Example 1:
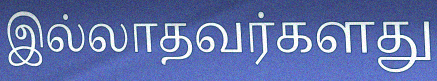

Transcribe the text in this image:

இல்லாதவர்களது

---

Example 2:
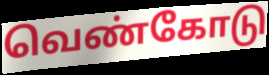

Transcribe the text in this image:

வெண்கோடு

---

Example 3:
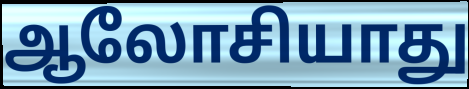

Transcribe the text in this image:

ஆலோசியாது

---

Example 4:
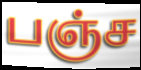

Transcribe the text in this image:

பஞ்ச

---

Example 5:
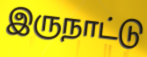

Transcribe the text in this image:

இருநாட்டு